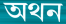
অথন